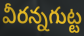
వీరన్నగుట్ట